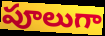
పూలుగా